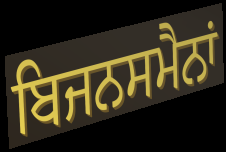
ਬਿਜਨਸਮੈਨਾਂ